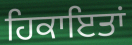
ਹਿਕਾਇਤਾਂ